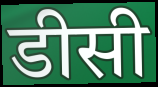
डीसी